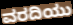
ವರದಿಯು